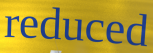
reduced